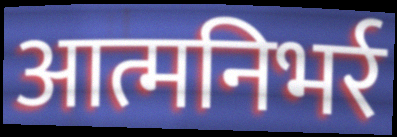
आत्मनिभर्र